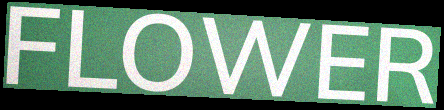
FLOWER